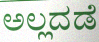
ಅಲ್ಲದಡೆ